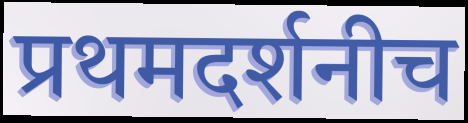
प्रथमदर्शनीच